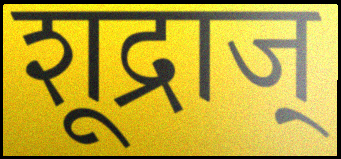
शूद्राज्